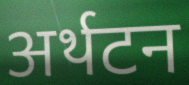
अर्थटन